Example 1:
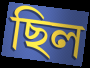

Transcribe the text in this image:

ছিল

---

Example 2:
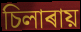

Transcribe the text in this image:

চিলাৰায়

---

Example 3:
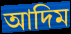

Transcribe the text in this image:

আদিম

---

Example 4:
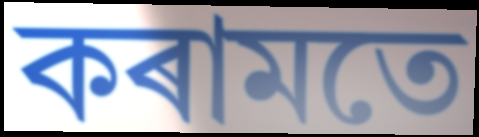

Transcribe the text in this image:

কৰামতে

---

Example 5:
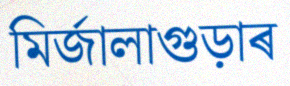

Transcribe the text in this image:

মিৰ্জালাগুড়াৰ